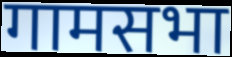
गामसभा